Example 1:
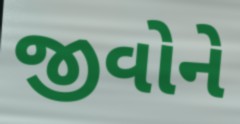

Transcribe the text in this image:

જીવોને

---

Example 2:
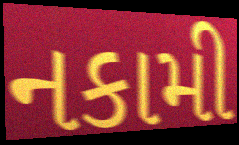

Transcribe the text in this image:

નકામી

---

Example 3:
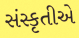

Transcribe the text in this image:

સંસ્કૃતીએ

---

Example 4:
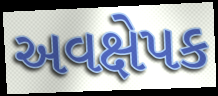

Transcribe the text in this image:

અવક્ષેપક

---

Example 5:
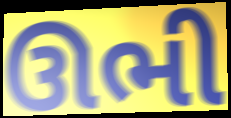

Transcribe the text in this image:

ઊભી